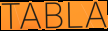
TABLA